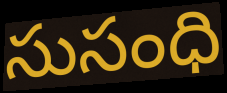
సుసంధి